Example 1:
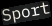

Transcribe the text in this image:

Sport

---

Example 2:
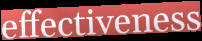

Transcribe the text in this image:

effectiveness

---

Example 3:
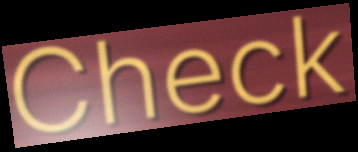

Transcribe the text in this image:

Check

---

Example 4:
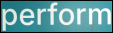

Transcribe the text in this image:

perform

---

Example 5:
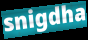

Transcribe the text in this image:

snigdha